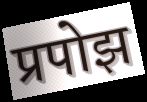
प्रपोझ